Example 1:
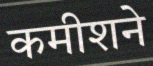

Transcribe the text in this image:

कमीशने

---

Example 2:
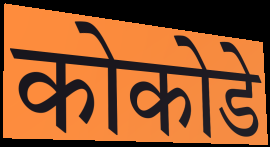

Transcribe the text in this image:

कोकोडे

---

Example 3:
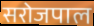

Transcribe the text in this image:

सरोजपाल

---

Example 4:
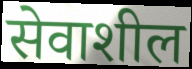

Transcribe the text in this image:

सेवाशील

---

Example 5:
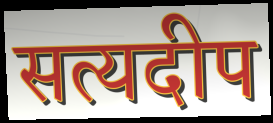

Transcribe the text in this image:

सत्यदीप